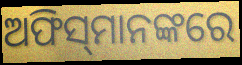
ଅଫିସ୍‌ମାନଙ୍କରେ